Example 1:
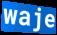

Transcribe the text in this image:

waje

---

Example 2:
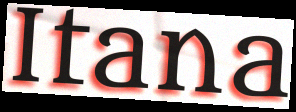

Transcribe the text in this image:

Itana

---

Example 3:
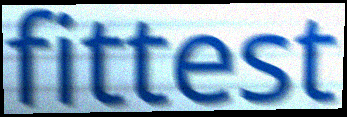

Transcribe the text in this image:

fittest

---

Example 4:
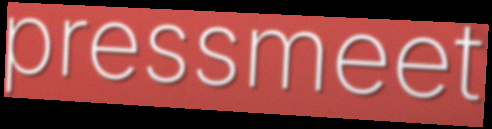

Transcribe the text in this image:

pressmeet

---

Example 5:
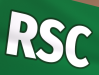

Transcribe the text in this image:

RSC